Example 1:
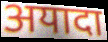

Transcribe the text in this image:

अयादा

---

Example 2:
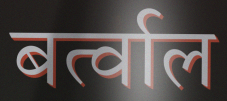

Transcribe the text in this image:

बर्त्वाल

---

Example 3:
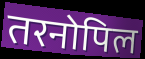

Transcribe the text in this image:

तरनोपिल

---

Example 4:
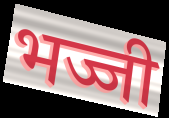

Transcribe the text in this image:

भज्जी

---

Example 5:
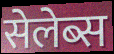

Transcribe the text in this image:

सेलेब्स